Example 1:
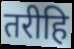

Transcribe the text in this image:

तरीहि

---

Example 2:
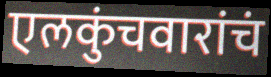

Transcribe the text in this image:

एलकुंचवारांचं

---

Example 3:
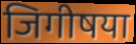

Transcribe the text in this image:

जिगीषया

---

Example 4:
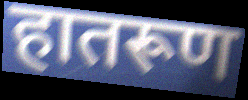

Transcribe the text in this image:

हातरूण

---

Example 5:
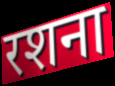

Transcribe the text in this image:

रशना